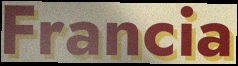
Francia